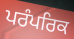
ਪਰੰਪਰਿਕ